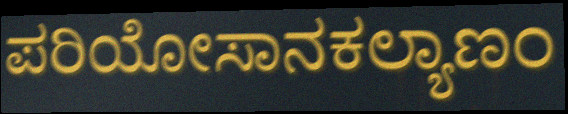
ಪರಿಯೋಸಾನಕಲ್ಯಾಣಂ